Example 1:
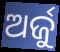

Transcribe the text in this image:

ଅର୍ଜୁ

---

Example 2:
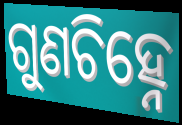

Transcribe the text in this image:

ଗୁଣଚିହ୍ନେ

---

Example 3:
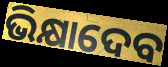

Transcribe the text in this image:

ଭିକ୍ଷାଦେବ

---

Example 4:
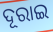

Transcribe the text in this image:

ଦୂରାଇ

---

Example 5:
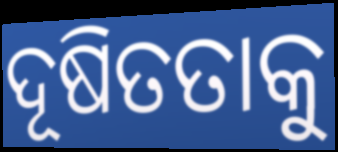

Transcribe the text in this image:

ଦୂଷିତତାକୁ